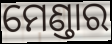
ମେଣ୍ଡାର